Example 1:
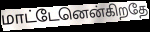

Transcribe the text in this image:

மாட்டேனென்கிறதே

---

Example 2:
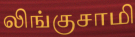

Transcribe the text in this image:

லிங்குசாமி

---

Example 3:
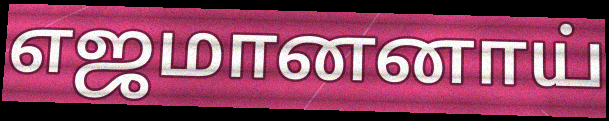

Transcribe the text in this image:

எஜமானனாய்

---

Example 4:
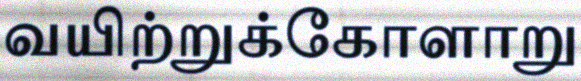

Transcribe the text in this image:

வயிற்றுக்கோளாறு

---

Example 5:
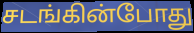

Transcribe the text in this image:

சடங்கின்போது